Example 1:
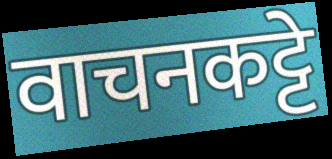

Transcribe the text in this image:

वाचनकट्टे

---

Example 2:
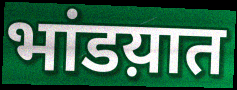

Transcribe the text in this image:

भांडय़ात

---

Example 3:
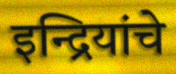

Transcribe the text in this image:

इन्द्रियांचे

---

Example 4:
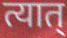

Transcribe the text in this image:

त्यात्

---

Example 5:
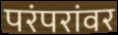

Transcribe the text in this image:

परंपरांवर